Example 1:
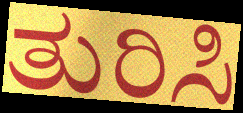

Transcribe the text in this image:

ತುರಿಸಿ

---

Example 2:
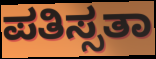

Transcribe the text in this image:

ಪತಿಸ್ಸತಾ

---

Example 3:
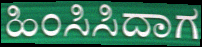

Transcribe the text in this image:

ಹಿಂಸಿಸಿದಾಗ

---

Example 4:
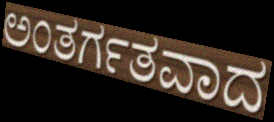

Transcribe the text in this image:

ಅಂತರ್ಗತವಾದ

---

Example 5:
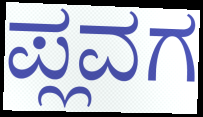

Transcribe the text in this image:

ಪ್ಲವಗ